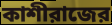
কাশীরাজের